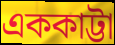
এককাট্টা